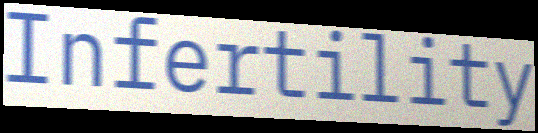
Infertility